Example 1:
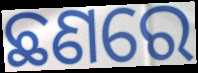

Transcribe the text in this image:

ଛଣରେ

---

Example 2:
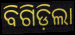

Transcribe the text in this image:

ବିଗିଡ଼ିଲା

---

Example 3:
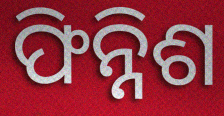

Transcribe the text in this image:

ଫିନ୍ନିଶ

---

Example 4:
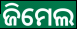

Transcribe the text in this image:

ଜିମେଲ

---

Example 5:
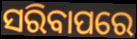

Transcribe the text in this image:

ସରିବାପରେ